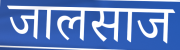
जालसाज